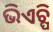
ଭିଏଚ୍ପି